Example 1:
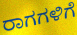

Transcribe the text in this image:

ರಾಗಗಳಿಗೆ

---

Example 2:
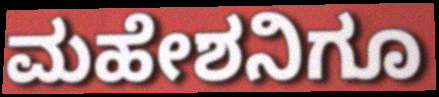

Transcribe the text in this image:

ಮಹೇಶನಿಗೂ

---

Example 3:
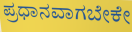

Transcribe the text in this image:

ಪ್ರಧಾನವಾಗಬೇಕೇ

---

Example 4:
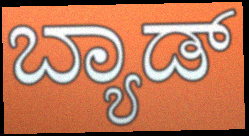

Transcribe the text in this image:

ಬ್ಯಾಡ್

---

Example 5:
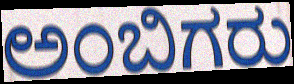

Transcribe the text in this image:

ಅಂಬಿಗರು